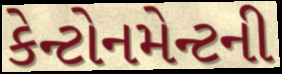
કેન્ટોનમેન્ટની